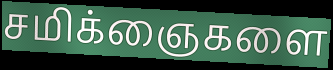
சமிக்ஞைகளை